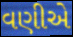
વણીએ